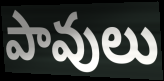
పావులు